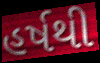
હર્ષથી